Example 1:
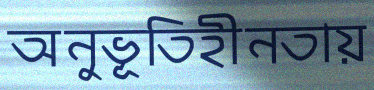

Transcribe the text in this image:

অনুভূতিহীনতায়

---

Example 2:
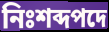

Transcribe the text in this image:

নিঃশব্দপদে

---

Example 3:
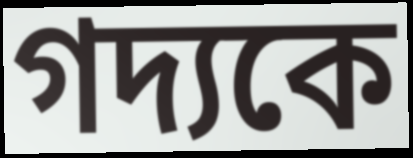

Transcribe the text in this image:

গদ্যকে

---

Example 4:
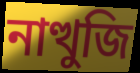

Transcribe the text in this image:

নাত্থুজি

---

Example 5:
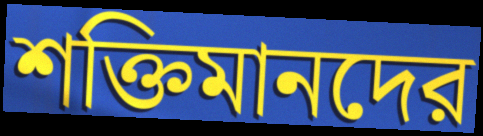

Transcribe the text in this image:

শক্তিমানদের